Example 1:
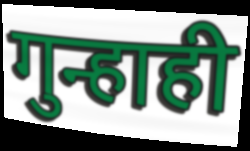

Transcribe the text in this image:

गुन्हाही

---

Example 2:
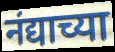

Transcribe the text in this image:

नंद्याच्या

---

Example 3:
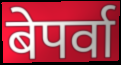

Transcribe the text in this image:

बेपर्वा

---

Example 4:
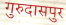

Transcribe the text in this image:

गुरुदासपुर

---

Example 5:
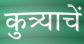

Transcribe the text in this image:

कुत्र्याचें